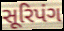
સૂરિપંગ